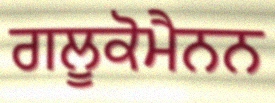
ਗਲੂਕੋਮੈਨਨ